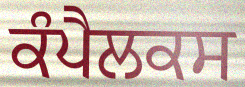
ਕੰਪੈਲਕਸ